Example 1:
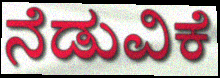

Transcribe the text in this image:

ನೆಡುವಿಕೆ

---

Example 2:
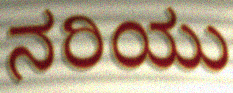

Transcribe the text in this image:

ನರಿಯು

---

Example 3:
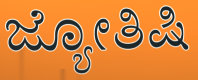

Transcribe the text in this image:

ಜ್ಯೋತಿಷಿ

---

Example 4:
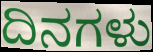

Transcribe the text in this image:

ದಿನಗಳು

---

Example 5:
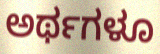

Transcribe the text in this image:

ಅರ್ಥಗಳೂ